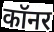
कॉनर